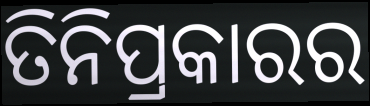
ତିନିପ୍ରକାରର